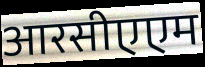
आरसीएएम